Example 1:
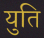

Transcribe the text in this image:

युति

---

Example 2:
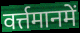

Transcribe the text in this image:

वर्त्तमानमें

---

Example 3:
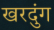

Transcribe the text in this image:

खरदुंग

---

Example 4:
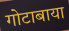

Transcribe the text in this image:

गोटाबाया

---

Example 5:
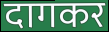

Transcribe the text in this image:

दागकर